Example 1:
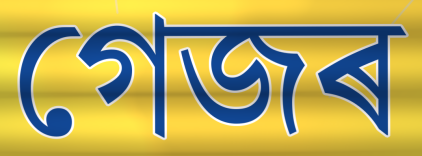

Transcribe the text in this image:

গেজৰ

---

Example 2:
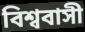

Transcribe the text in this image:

বিশ্ববাসী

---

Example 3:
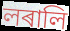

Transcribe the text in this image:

লৰালি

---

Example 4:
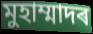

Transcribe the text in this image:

মুহাম্মাদৰ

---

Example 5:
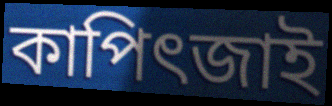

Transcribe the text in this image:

কাপিৎজাই